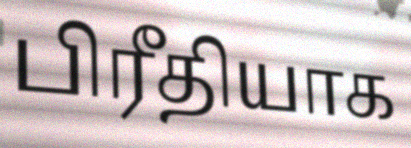
பிரீதியாக